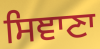
ਸਿਞਾਣਾ